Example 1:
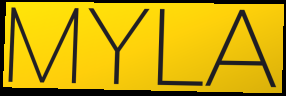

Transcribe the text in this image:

MYLA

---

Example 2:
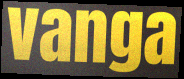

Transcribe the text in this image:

vanga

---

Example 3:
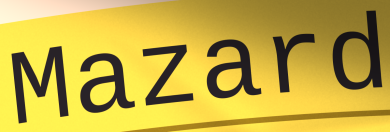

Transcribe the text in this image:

Mazard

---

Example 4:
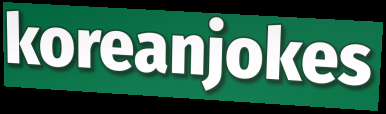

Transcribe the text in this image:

koreanjokes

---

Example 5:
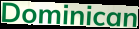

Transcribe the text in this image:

Dominican